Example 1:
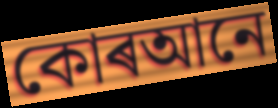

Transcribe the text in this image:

কোৰআনে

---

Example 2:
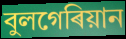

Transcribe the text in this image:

বুলগেৰিয়ান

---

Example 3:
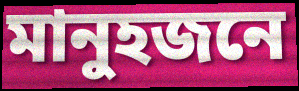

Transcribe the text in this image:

মানুহজনে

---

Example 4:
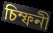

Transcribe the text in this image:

চিম্ফনী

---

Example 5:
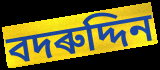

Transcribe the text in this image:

বদৰুদ্দিন